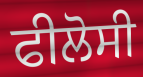
ਫੀਲੋਸੀ